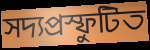
সদ্যপ্রস্ফুটিত